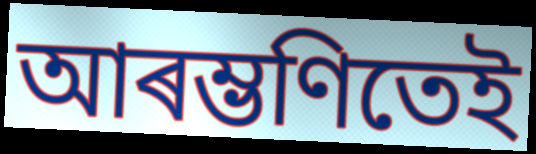
আৰম্ভণিতেই